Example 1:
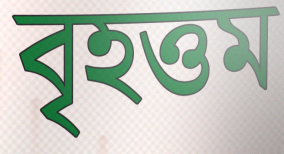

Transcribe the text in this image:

বৃহত্তম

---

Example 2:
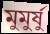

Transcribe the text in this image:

মুমুর্ষু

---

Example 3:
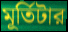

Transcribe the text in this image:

মূর্তিটার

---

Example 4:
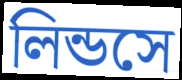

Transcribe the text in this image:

লিন্ডসে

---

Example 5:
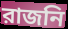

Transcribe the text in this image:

রাজনি